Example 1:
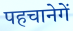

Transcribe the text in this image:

पहचानेगें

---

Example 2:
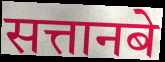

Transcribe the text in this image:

सत्तानबे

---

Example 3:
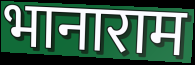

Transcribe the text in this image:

भानाराम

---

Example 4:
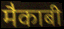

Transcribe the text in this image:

मैकाबी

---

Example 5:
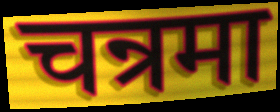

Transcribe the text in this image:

चन्रमा